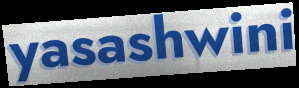
yasashwini